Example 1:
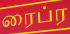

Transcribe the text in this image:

ரைப்ர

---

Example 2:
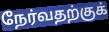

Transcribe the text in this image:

நேர்வதற்குக்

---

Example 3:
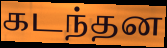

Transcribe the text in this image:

கடந்தன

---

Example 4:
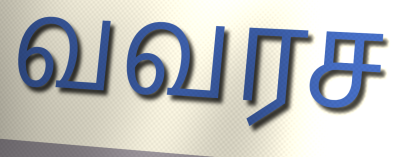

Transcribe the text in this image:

வவரச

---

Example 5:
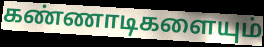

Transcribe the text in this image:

கண்ணாடிகளையும்